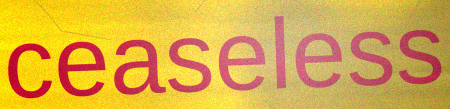
ceaseless